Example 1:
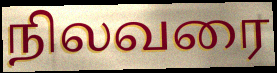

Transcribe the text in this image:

நிலவரை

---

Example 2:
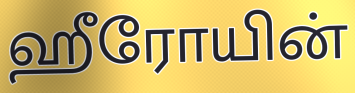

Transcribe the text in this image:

ஹீரோயின்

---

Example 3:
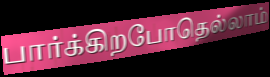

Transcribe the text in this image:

பார்க்கிறபோதெல்லாம்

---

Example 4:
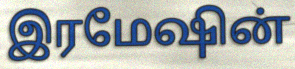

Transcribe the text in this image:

இரமேஷின்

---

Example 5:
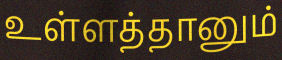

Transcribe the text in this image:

உள்ளத்தானும்